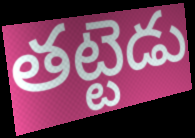
తట్టెడు